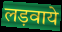
लड़वाये